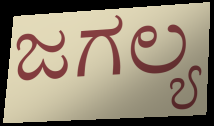
ಜಗಲ್ಯ